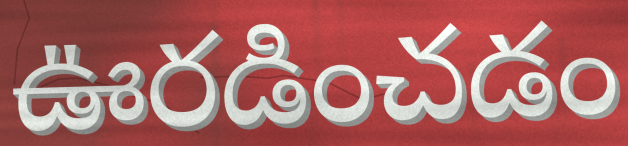
ఊరడించడం